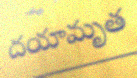
దయామృత